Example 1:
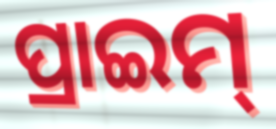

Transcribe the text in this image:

ପ୍ରାଇମ୍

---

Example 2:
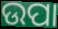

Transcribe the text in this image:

ଉପା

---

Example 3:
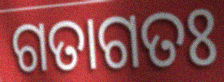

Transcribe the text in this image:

ଗତାଗତଃ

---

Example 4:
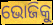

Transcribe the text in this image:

ଭୋଜିକୁ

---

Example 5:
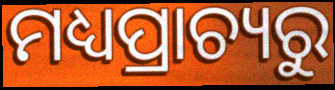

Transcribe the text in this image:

ମଧ୍ୟପ୍ରାଚ୍ୟରୁ